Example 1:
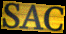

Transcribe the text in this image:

SAC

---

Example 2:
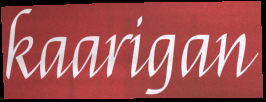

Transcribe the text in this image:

kaarigan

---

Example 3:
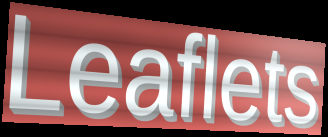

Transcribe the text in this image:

Leaflets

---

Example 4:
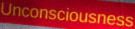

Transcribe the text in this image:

Unconsciousness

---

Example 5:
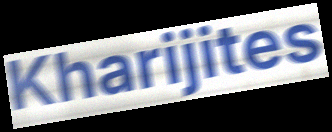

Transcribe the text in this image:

Kharijites